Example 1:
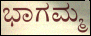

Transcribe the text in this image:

ಭಾಗಮ್ಮ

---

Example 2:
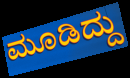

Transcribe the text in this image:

ಮೂಡಿದ್ದು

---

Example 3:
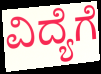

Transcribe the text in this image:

ವಿದ್ಯೆಗೆ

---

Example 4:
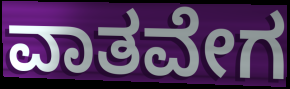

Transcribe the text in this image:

ವಾತವೇಗ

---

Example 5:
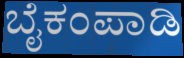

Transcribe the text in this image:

ಬೈಕಂಪಾಡಿ